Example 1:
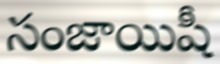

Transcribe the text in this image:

సంజాయిషీ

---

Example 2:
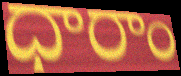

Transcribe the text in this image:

ధారాం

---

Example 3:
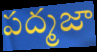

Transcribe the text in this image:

పద్మజా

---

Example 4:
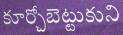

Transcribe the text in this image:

కూర్చోబెట్టుకుని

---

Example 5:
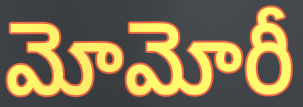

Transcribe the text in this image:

మోమోరీ